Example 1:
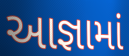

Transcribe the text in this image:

આજ્ઞામાં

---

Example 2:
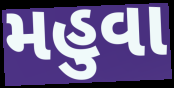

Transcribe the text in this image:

મહુવા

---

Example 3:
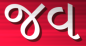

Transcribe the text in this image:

જવ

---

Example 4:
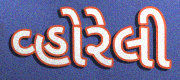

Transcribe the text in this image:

વ્હોરેલી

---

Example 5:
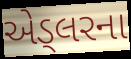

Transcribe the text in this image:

એડ્લરના